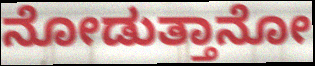
ನೋಡುತ್ತಾನೋ